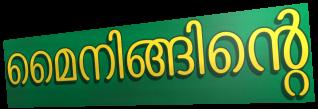
മൈനിങ്ങിന്റെ